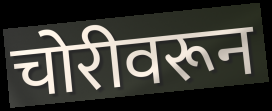
चोरीवरून